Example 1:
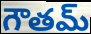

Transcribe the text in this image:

గౌతమ్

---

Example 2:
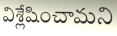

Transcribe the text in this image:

విశ్లేషించామని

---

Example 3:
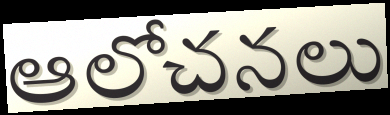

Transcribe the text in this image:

ఆలోచనలు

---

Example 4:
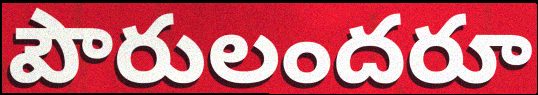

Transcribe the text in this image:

పౌరులందరూ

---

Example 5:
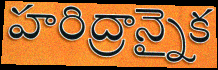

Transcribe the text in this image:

హరిద్రాన్నైక